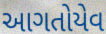
આગતોયેવ